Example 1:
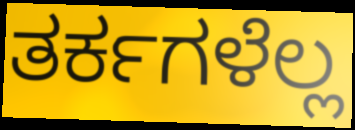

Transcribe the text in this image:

ತರ್ಕಗಳೆಲ್ಲ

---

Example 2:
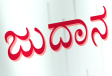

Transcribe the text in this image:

ಜುದಾನ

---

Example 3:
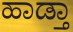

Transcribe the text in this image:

ಹಾಡ್ತಾ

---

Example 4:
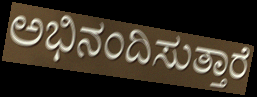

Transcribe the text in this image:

ಅಭಿನಂದಿಸುತ್ತಾರೆ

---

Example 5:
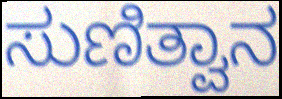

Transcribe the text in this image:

ಸುಣಿತ್ವಾನ